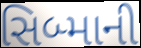
સિબ્માની